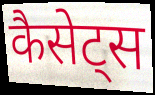
कैसेट्स